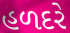
હળદરે